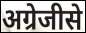
अग्रेजीसे